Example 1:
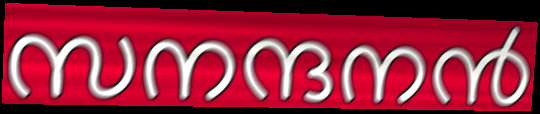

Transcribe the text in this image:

സനന്ദനൻ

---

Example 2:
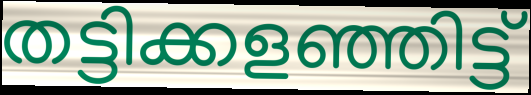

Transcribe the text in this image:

തട്ടിക്കളഞ്ഞിട്ട്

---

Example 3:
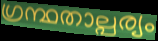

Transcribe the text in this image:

ഗ്രന്ഥതാല്പര്യം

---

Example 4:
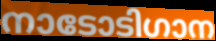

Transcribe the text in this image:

നാടോടിഗാന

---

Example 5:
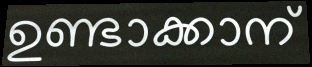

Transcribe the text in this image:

ഉണ്ടാക്കാന്